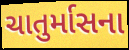
ચાતુર્માસના